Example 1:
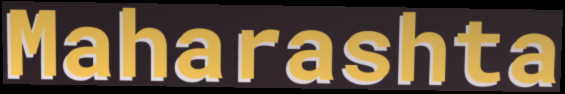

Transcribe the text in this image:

Maharashta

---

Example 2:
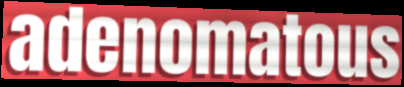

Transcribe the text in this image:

adenomatous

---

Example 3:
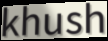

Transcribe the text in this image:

khush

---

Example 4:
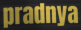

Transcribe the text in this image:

pradnya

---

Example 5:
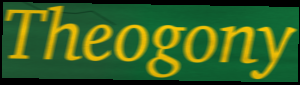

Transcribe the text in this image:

Theogony